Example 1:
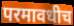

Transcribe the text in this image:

परमावधीच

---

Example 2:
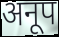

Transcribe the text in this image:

अनूप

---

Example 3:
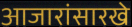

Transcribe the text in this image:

आजारांसारखे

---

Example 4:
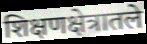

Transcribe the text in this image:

शिक्षणक्षेत्रातले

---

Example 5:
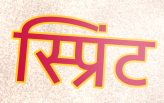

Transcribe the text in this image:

स्प्रिंट